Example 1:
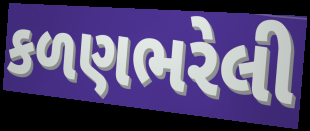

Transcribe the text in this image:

કળણભરેલી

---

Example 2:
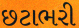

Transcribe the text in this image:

છટાભરી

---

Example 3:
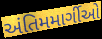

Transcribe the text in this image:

અંતિમમાર્ગીઓ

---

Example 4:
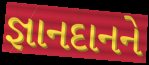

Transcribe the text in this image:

જ્ઞાનદાનને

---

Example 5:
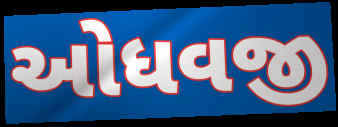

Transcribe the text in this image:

ઓધવજી